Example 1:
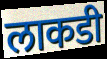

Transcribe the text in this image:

लाकडी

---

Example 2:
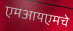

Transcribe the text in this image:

एमआयएमचे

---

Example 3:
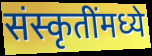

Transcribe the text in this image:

संस्कृतींमध्ये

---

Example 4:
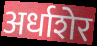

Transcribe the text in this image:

अर्धाशेर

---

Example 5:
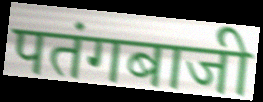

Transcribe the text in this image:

पतंगबाजी